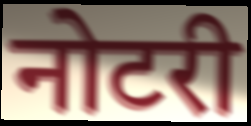
नोटरी